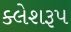
ક્લેશરૂપ